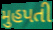
મુહપતી